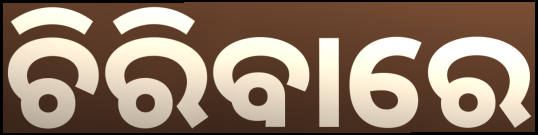
ଚିରିବାରେ